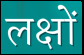
लक्षों